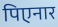
पिएनार